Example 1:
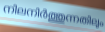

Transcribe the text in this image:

നിലനിർത്തുന്നതിലും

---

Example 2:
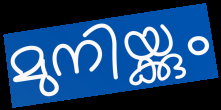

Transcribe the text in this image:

മുനിയ്ക്കും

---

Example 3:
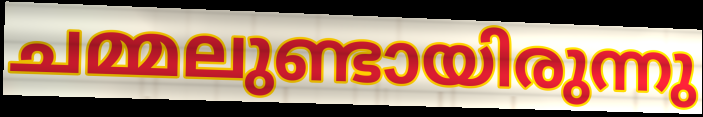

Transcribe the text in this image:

ചമ്മലുണ്ടായിരുന്നു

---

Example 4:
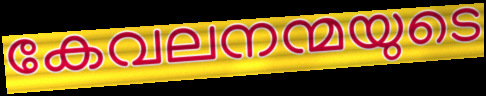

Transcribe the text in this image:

കേവലനന്മയുടെ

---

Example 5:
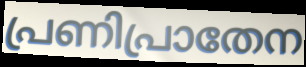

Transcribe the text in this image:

പ്രണിപ്രാതേന